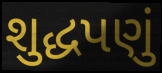
શુદ્ધપણું